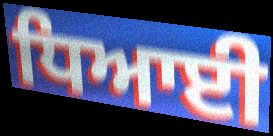
ਧਿਆਈ